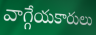
వాగ్గేయకారులు